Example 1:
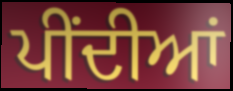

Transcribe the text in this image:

ਪੀਂਦੀਆਂ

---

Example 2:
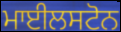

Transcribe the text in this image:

ਮਾਈਲਸਟੋਨ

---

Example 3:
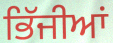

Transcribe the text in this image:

ਭਿੱਜੀਆਂ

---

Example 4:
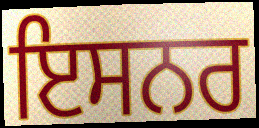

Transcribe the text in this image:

ਇਸਨਰ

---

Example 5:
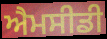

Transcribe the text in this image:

ਐਮਸੀਡੀ